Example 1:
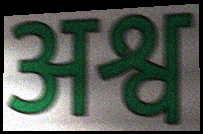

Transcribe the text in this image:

अश्व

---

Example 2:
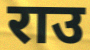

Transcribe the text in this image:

राउ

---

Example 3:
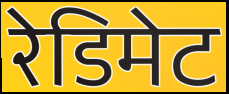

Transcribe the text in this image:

रेडिमेट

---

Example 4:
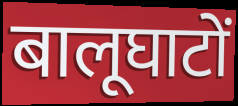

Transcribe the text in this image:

बालूघाटों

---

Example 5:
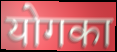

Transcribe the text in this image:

योगका